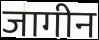
जागीन